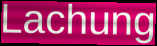
Lachung